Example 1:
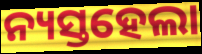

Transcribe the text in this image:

ନ୍ୟସ୍ତହେଲା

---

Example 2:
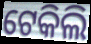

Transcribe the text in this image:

ଟେକିଲି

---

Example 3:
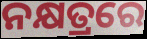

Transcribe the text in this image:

ନକ୍ଷତ୍ରରେ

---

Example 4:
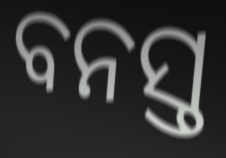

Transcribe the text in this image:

ବନସ୍ତ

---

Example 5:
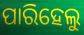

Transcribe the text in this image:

ପାରିହେଲୁ